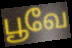
பூவே